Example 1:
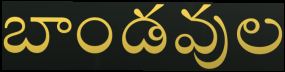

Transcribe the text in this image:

బాండవుల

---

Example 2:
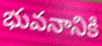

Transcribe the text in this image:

భువనానికి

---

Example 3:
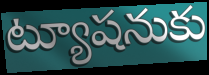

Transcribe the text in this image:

ట్యూషనుకు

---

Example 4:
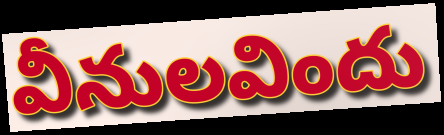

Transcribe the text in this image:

వీనులవిందు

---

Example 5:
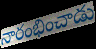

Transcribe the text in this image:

నారంభించాడు